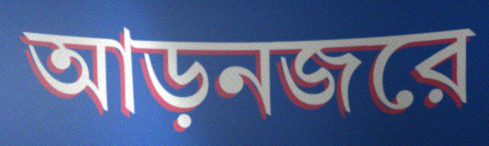
আড়নজরে